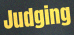
Judging